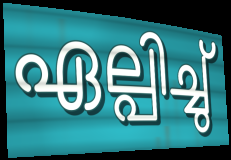
ഏല്പിച്ചു്